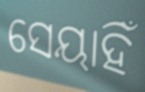
ସେୟାହିଁ